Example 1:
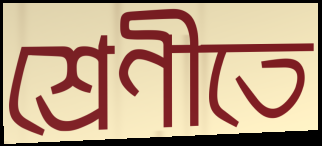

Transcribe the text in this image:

শ্ৰেণীতে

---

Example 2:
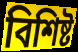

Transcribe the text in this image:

বিশিষ্ট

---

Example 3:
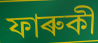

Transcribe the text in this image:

ফাৰুকী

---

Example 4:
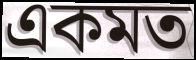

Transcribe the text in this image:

একমত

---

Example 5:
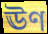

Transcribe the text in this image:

ঊণ